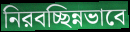
নিরবচ্ছিন্নভাবে